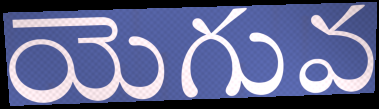
యెగువ